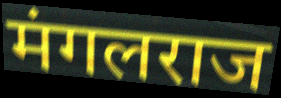
मंगलराज